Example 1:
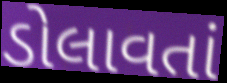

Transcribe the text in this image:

ડોલાવતાં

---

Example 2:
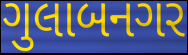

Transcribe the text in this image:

ગુલાબનગર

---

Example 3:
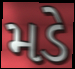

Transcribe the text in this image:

મડે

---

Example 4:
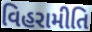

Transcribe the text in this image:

વિહરામીતિ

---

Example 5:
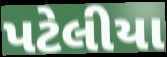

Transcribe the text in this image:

પટેલીયા